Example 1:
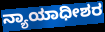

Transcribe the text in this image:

ನ್ಯಾಯಾಧೀಶರ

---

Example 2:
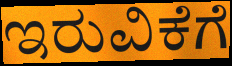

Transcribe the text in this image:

ಇರುವಿಕೆಗೆ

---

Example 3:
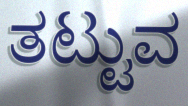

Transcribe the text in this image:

ತಟ್ಟುವ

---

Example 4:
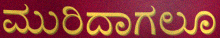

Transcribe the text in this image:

ಮುರಿದಾಗಲೂ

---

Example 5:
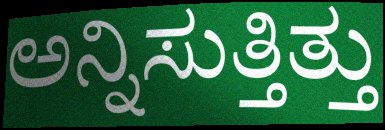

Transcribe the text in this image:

ಅನ್ನಿಸುತ್ತಿತ್ತು